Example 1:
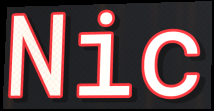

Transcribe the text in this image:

Nic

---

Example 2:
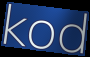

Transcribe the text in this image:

kod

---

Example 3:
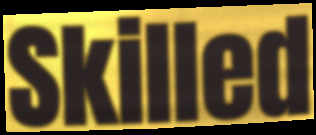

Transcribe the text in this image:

Skilled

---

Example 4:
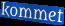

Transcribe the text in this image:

kommet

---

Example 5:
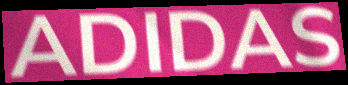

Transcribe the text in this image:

ADIDAS